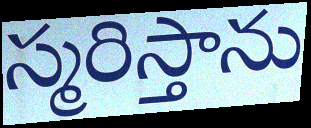
స్మరిస్తాను